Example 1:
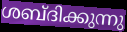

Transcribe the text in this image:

ശബ്ദിക്കുന്നു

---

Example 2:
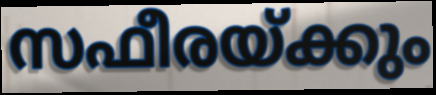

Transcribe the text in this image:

സഫീരയ്ക്കും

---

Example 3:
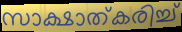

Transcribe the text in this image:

സാക്ഷാത്കരിച്ച്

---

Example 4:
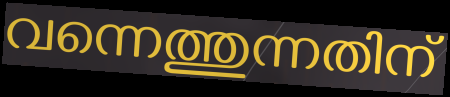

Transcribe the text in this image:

വന്നെത്തുന്നതിന്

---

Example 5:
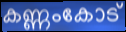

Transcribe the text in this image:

കണ്ണംകോട്